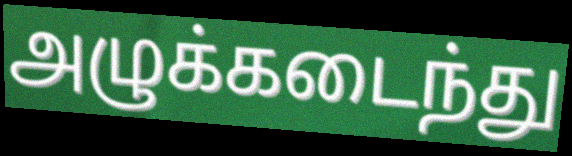
அழுக்கடைந்து